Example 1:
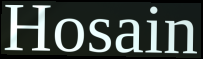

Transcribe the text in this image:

Hosain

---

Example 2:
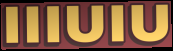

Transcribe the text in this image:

IIIUIU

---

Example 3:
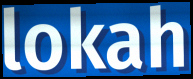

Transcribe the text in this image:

lokah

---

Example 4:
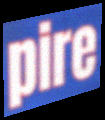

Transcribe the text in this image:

pire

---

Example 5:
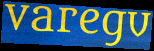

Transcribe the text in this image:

varegu